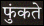
फुंकते